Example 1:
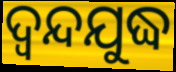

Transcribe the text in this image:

ଦ୍ୱନ୍ଦଯୁଦ୍ଧ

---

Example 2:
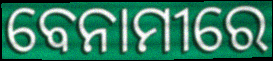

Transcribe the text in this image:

ବେନାମୀରେ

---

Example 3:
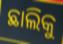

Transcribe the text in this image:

ଛାଲିକୁ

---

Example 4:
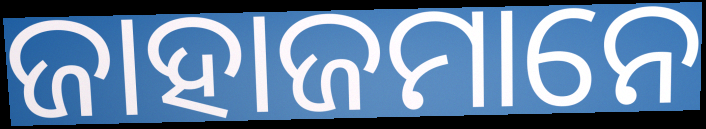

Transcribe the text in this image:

ଜାହାଜମାନେ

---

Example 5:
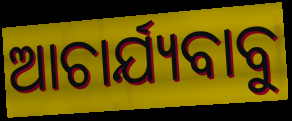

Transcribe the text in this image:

ଆଚାର୍ଯ୍ୟବାବୁ